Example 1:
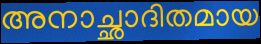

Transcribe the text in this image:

അനാച്ഛാദിതമായ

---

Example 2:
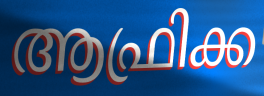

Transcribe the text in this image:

ആഫ്രിക്ക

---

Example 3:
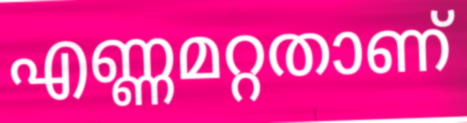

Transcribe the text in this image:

എണ്ണമറ്റതാണ്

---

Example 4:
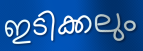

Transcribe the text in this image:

ഇടിക്കലും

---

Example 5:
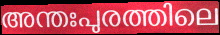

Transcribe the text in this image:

അന്തഃപുരത്തിലെ